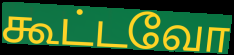
கூட்டவோ